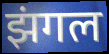
झंगल